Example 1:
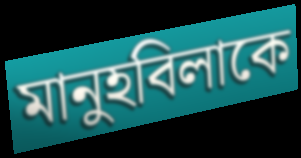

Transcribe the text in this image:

মানুহবিলাকে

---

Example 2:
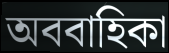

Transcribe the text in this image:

অববাহিকা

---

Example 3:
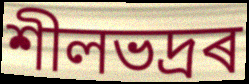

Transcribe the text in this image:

শীলভদ্ৰৰ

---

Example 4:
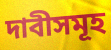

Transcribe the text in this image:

দাবীসমূহ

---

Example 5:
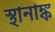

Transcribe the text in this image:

স্থানাঙ্ক